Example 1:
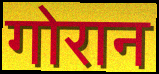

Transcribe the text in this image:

गोरान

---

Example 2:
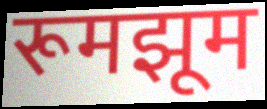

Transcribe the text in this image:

रूमझूम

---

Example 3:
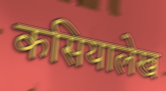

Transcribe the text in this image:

कसियालेख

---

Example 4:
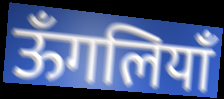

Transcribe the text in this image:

ऊँगलियाँ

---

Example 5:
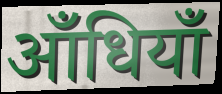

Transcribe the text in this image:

आँधियाँ